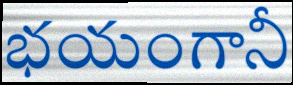
భయంగానీ